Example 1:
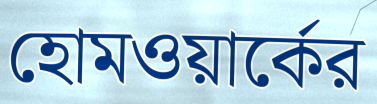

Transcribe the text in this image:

হোমওয়ার্কের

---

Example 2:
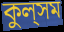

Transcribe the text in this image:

কুল্‌সম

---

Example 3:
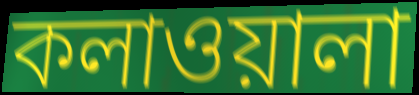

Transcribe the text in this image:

কলাওয়ালা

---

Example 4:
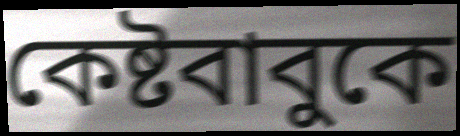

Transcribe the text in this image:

কেষ্টবাবুকে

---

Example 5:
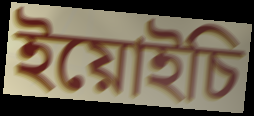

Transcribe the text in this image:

ইয়োইচি